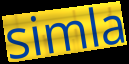
simla